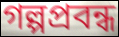
গল্পপ্রবন্ধ